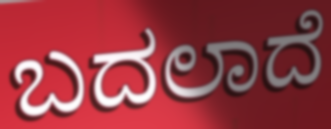
ಬದಲಾದೆ